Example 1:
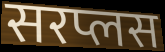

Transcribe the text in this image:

सरप्लस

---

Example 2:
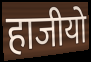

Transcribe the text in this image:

हाजीयो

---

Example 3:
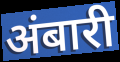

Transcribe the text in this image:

अंबारी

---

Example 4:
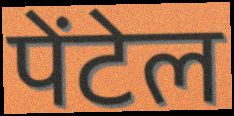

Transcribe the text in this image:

पेंटेल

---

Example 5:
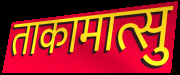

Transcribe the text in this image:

ताकामात्सु